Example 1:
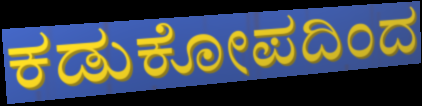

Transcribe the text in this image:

ಕಡುಕೋಪದಿಂದ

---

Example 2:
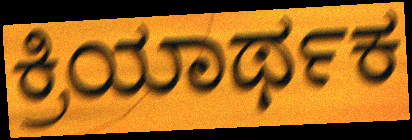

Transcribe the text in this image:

ಕ್ರಿಯಾರ್ಥಕ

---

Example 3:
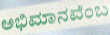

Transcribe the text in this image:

ಅಭಿಮಾನವೆಂಬ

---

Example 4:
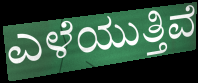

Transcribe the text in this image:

ಎಳೆಯುತ್ತಿವೆ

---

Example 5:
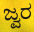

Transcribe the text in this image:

ಜ್ವರ